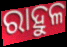
ରାହୁଳ